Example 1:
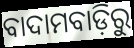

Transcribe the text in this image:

ବାଦାମବାଡ଼ିରୁ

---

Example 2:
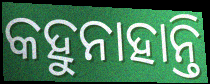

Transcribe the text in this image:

କହୁନାହାନ୍ତି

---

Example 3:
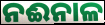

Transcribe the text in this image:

ନଈନାଳ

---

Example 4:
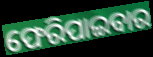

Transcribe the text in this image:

ଫେରିପାଇବାର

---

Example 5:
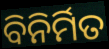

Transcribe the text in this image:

ବିନିର୍ମିତ